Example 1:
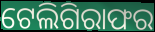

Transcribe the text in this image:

ଟେଲିଗିରାଫର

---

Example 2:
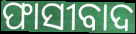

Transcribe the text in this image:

ଫାସୀବାଦ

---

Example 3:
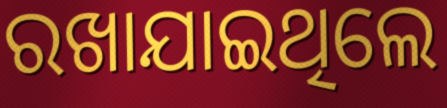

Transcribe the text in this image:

ରଖାଯାଇଥିଲେ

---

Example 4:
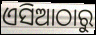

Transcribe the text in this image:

ଏସିଆଠାରୁ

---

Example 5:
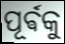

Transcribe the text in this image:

ପୂର୍ଵକୁ